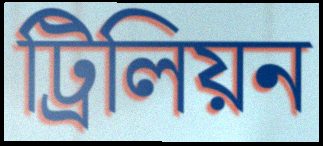
ট্ৰিলিয়ন